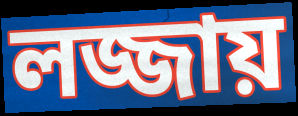
লজ্জায়